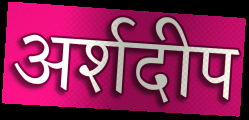
अर्शदीप